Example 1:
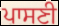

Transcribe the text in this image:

ਪਾਸਣੀ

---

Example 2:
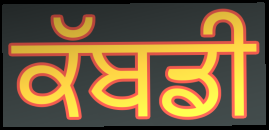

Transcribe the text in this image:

ਕੱਬਡੀ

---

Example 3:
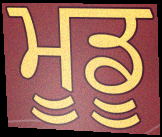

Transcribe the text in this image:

ਮੂਡੂ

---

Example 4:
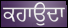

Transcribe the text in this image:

ਕਹਾਉਦਾ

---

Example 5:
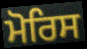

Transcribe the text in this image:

ਮੋਰਿਸ